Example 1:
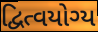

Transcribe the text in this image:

દ્વિત્વયોગ્ય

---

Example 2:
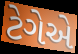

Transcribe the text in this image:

ટેગેએ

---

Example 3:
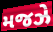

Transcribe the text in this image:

મજઝે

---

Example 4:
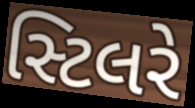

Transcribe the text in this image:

સ્ટિલરે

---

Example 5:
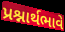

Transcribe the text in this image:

પ્રશ્નાર્થભાવે